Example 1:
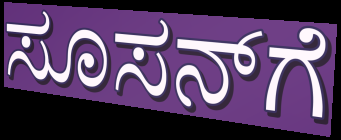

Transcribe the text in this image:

ಸೂಸನ್‌ಗೆ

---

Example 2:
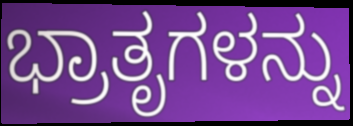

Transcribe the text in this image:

ಭ್ರಾತೃಗಳನ್ನು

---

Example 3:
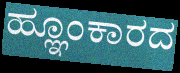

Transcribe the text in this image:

ಹ್ಞೂಂಕಾರದ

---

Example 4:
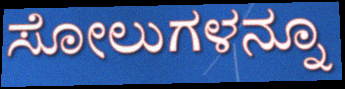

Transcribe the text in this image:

ಸೋಲುಗಳನ್ನೂ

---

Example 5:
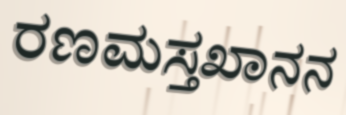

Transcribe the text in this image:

ರಣಮಸ್ತಖಾನನ